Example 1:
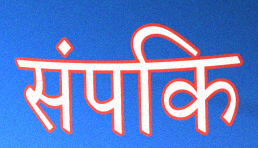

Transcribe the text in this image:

संपकि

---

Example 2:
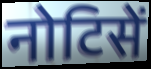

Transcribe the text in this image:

नोटिसें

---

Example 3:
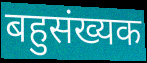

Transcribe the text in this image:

बहुसंख्यक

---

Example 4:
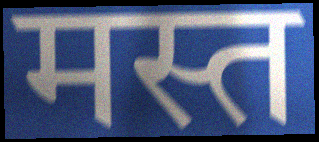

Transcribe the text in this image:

मस्‍त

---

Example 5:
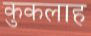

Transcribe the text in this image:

कुकलाह